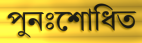
পুনঃশোধিত